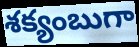
శక్యంబుగా